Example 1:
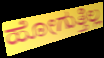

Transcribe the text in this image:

ಹೋಗುತ್ತಿಲ್ಲ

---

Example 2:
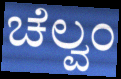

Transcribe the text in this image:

ಚೆಲ್ವಂ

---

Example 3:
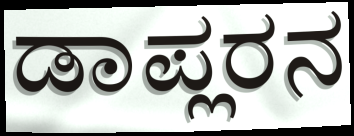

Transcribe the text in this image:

ಡಾಪ್ಲರನ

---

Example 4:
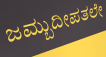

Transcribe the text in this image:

ಜಮ್ಬುದೀಪತಲೇ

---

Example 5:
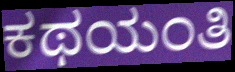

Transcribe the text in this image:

ಕಥಯಂತಿ